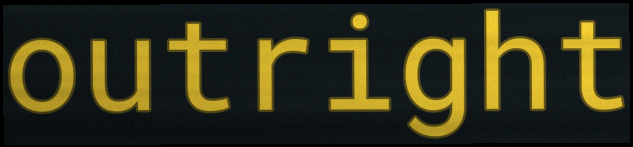
outright